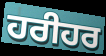
ਹਰੀਹਰ